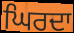
ਘਿਰਦਾ